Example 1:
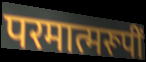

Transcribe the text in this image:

परमात्मरूपीं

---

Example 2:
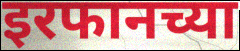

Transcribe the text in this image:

इरफानच्या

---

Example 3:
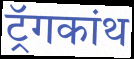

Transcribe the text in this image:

ट्रॅगकांथ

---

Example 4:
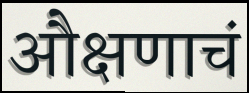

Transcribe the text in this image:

औक्षणाचं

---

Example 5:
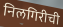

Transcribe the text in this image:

निलगिरीची